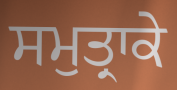
ਸਮੁਤ੍ਰਾਕੇ